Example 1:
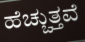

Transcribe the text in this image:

ಹೆಚ್ಚುತ್ತವೆ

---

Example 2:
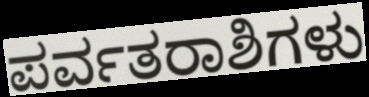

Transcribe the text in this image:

ಪರ್ವತರಾಶಿಗಳು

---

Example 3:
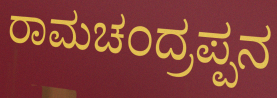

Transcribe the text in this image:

ರಾಮಚಂದ್ರಪ್ಪನ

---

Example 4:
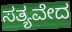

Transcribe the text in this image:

ಸತ್ಯವೇದ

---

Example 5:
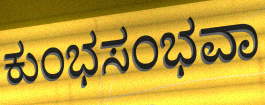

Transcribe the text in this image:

ಕುಂಭಸಂಭವಾ